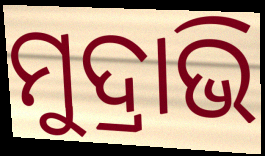
ମୁଦ୍ରାଭି